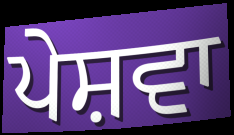
ਪੇਸ਼ਵਾ